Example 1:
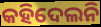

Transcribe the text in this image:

କହିଦେଲନି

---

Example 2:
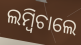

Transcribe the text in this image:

ଲମ୍ବିଚାଲେ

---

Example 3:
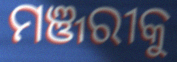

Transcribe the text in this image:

ମଞ୍ଜରୀକୁ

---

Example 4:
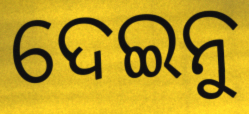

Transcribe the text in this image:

ଦେଇନୁ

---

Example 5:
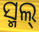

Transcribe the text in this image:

ସ୍ମଲ୍